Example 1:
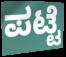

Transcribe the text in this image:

ಪಟ್ಟೆ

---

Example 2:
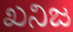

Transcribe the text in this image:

ಖನಿಜ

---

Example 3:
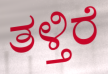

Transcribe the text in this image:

ತಳ್ತಿರೆ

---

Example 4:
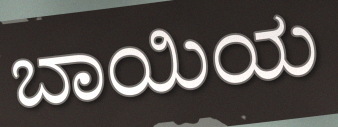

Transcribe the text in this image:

ಬಾಯಿಯ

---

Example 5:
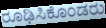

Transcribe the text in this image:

ರೂಢಿಸಿಕೊಂಡರು